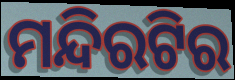
ମନ୍ଦିରଟିର